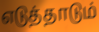
எடுத்தாடும்